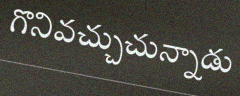
గొనివచ్చుచున్నాడు